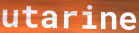
utarine